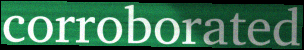
corroborated